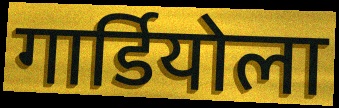
गार्डियोला